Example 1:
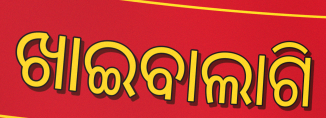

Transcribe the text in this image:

ଖାଇବାଲାଗି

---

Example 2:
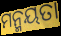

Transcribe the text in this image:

ମନ୍ମୟତା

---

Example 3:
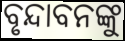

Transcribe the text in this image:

ବୃନ୍ଦାବନଙ୍କୁ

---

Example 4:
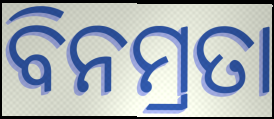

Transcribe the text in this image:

ବିନମ୍ରତା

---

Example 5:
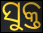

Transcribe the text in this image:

ସୁକ୍ତ